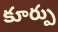
కూర్పు